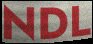
NDL